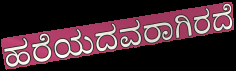
ಹರೆಯದವರಾಗಿರದೆ